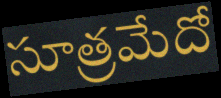
సూత్రమేదో